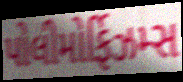
પોલીમોર્ફિઝમ્સ